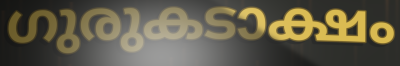
ഗുരുകടാക്ഷം